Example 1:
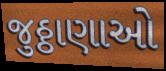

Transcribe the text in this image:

જુઠ્ઠાણાઓ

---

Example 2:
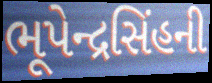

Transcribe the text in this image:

ભૂપેન્દ્રસિંહની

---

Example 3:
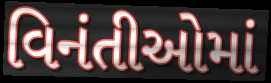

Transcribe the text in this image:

વિનંતીઓમાં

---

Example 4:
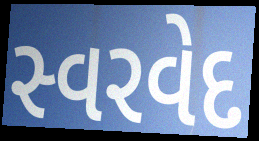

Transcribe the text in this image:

સ્વરવેદ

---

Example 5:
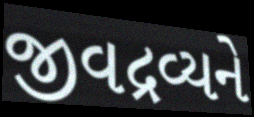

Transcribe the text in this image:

જીવદ્રવ્યને